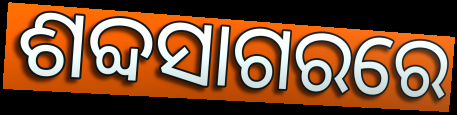
ଶବ୍ଦସାଗରରେ